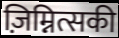
ज़िम्नित्सकी